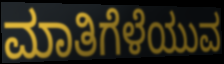
ಮಾತಿಗೆಳೆಯುವ